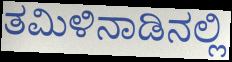
ತಮಿಳಿನಾಡಿನಲ್ಲಿ